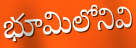
భూమిలోనివి